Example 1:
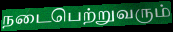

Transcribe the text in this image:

நடைபெற்றுவரும்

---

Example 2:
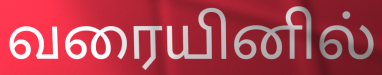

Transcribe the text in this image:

வரையினில்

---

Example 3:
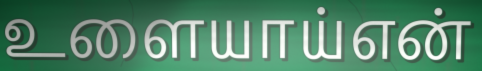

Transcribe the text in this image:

உளையாய்என்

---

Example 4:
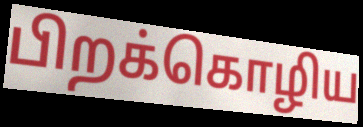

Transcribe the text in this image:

பிறக்கொழிய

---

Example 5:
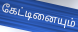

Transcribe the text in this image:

கேட்டினையும்